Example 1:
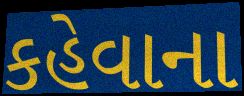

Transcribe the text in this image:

કહેવાના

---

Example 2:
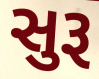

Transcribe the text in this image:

સુરૂ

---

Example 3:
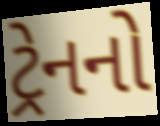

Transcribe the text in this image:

ટ્રેનનો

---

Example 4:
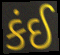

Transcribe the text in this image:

કંઈ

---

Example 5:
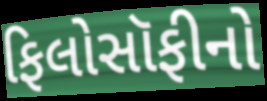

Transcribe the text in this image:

ફિલોસૉફીનો